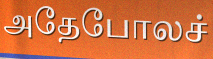
அதேபோலச்